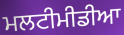
ਮਲਟੀਮੀਡੀਆ